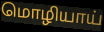
மொழியாய்